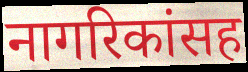
नागरिकांसह